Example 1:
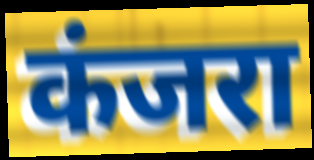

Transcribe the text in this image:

कंजरा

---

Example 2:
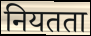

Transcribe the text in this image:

नियतता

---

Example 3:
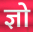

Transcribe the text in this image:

ज्ञो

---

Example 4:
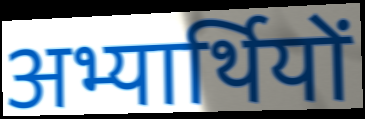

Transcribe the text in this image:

अभ्‍यार्थियों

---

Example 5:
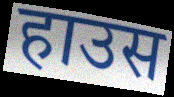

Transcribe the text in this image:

हाउस